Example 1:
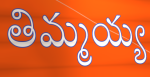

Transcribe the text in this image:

తిమ్మయ్య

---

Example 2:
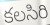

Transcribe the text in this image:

కలసిరి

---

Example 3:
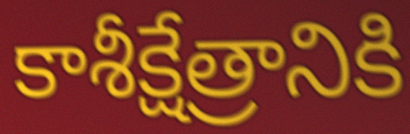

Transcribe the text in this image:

కాశీక్షేత్రానికి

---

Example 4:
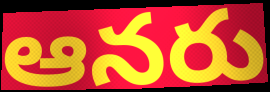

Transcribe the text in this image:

ఆనరు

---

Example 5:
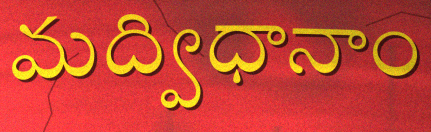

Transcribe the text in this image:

మద్విధానాం